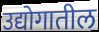
उद्योगातील